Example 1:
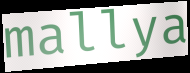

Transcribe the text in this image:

mallya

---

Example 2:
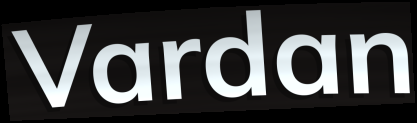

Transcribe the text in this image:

Vardan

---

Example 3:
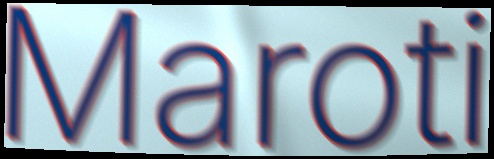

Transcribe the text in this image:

Maroti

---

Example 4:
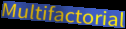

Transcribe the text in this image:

Multifactorial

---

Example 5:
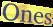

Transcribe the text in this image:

Ones